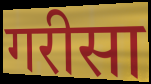
गरीसा